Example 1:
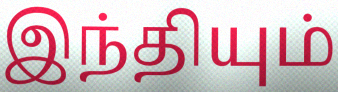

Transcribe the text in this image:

இந்தியும்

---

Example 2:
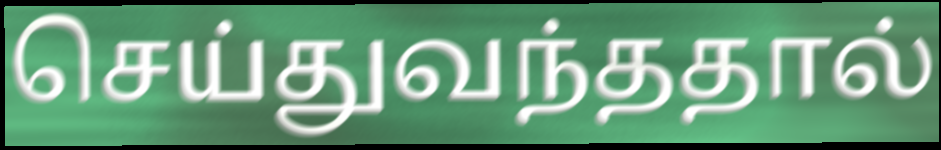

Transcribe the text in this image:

செய்துவந்ததால்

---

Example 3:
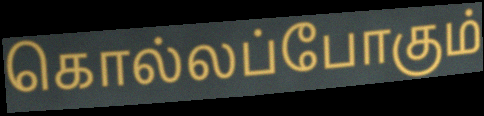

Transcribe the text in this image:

கொல்லப்போகும்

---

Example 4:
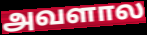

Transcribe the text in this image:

அவளால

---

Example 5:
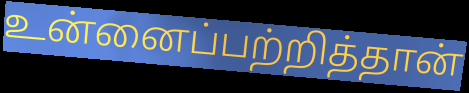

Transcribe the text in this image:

உன்னைப்பற்றித்தான்